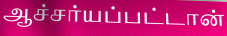
ஆச்சர்யப்பட்டான்